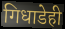
गिधाडेही